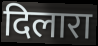
दिलारा